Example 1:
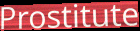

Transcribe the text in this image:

Prostitute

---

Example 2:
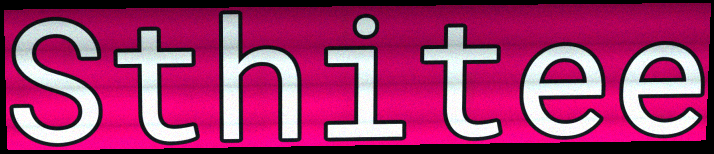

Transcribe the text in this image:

Sthitee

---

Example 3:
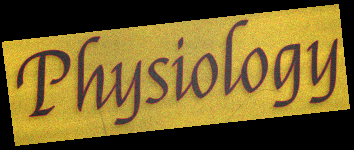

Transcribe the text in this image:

Physiology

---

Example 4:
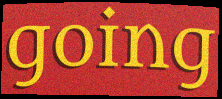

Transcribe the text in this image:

going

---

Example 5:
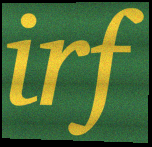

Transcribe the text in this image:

irf